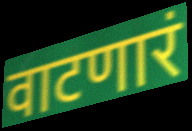
वाटणारं